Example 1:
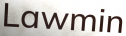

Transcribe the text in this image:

Lawmin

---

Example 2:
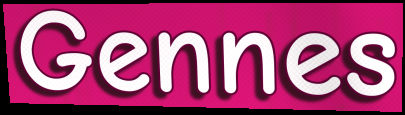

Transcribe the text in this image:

Gennes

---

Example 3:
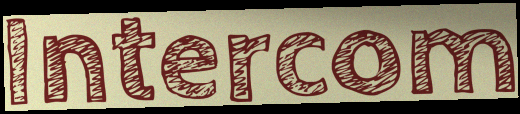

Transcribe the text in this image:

Intercom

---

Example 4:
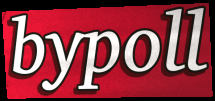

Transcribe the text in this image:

bypoll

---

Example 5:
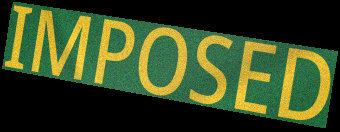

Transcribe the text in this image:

IMPOSED